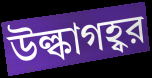
উল্কাগহ্বর